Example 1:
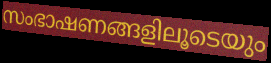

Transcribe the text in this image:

സംഭാഷണങ്ങളിലൂടെയും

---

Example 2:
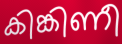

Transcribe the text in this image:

കിങ്കിണീ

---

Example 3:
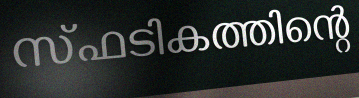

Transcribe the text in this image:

സ്ഫടികത്തിന്റെ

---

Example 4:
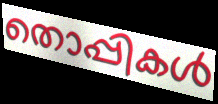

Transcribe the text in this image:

തൊപ്പികൾ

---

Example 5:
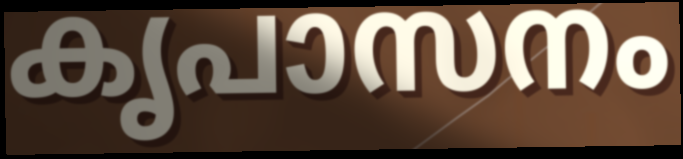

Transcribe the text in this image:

കൃപാസനം